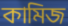
কামিজ